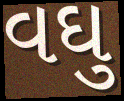
વઘુ